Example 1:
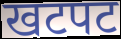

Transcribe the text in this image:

खटपट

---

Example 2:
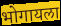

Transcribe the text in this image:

भोगायला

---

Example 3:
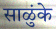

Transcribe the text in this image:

साळुंके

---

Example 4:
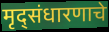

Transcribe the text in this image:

मृद्संधारणाचे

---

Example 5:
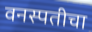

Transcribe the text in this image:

वनस्पतीचा